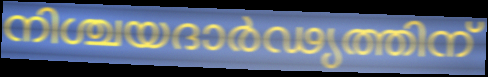
നിശ്ചയദാർഢ്യത്തിന്